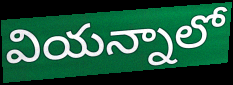
వియన్నాలో